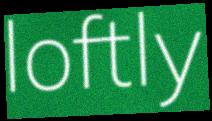
loftly